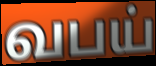
வபய்